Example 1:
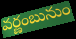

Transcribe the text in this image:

వర్ణంబునుం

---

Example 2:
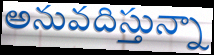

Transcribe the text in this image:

అనువదిస్తున్నా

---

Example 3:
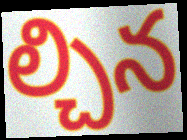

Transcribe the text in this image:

ల్చిన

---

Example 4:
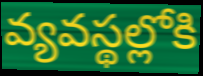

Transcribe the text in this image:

వ్యవస్థల్లోకి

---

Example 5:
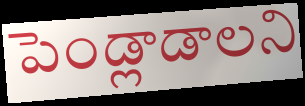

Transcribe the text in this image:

పెండ్లాడాలని